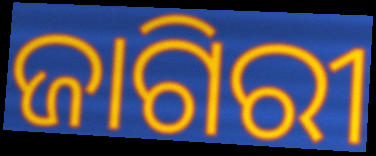
ଜାଗିରୀ